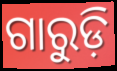
ଗାରୁଡ଼ି